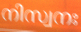
നിസ്വനഃ